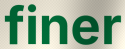
finer